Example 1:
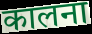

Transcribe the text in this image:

कालना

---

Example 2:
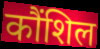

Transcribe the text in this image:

कौंशिल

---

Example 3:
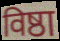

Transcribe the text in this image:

विष्ठा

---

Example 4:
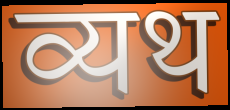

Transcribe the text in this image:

व्यथ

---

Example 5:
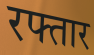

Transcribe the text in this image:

रफ्‍तार